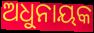
ଅଧୁନାୟକ